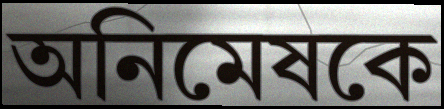
অনিমেষকে